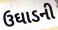
ઉઘાડની